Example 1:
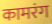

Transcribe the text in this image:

कामरंग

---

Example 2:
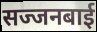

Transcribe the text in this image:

सज्जनबाई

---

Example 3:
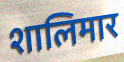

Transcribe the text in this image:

शालिमार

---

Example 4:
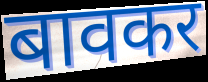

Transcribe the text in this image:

बावकर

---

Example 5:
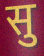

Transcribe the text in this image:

सु